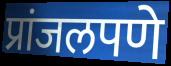
प्रांजलपणे